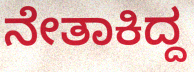
ನೇತಾಕಿದ್ದ